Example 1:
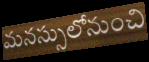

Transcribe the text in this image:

మనస్సులోనుంచి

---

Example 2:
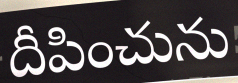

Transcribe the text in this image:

దీపించును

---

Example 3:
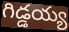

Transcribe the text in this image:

గిడ్డయ్య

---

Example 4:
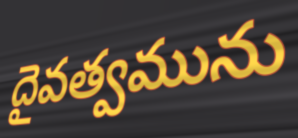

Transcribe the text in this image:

దైవత్వమును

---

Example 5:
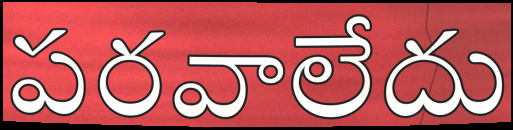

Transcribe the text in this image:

పరవాలేదు